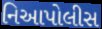
નિઆપોલીસ